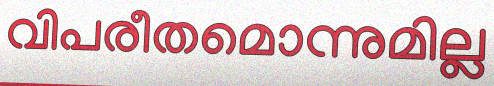
വിപരീതമൊന്നുമില്ല